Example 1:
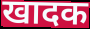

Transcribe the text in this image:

खादक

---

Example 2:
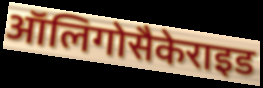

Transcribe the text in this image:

ऑलिगोसैकेराइड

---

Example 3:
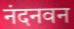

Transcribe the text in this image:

नंदनवन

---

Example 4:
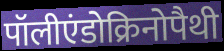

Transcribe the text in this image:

पॉलीएंडोक्रिनोपैथी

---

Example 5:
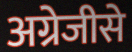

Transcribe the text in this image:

अग्रेजीसे